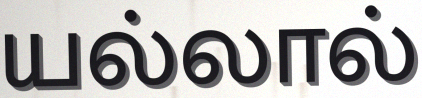
யல்லால்